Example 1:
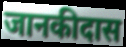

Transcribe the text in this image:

जानकीदास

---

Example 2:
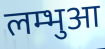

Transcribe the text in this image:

लम्भुआ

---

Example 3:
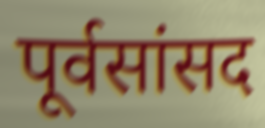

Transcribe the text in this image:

पूर्वसांसद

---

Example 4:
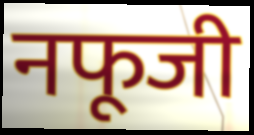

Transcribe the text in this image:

नफूजी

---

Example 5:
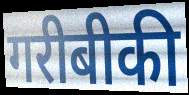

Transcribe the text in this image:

गरीबीकी